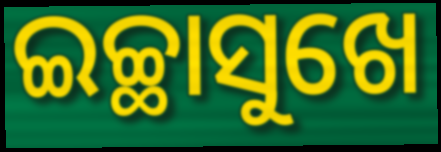
ଇଚ୍ଛାସୁଖେ